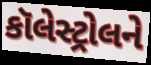
કૉલેસ્ટ્રોલને